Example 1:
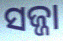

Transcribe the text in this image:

ସଜ୍ଜା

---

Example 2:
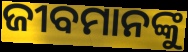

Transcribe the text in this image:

ଜୀବମାନଙ୍କୁ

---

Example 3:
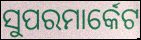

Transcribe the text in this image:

ସୁପରମାର୍କେଟ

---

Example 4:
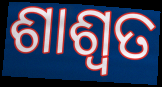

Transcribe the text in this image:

ଶାଶ୍ଵତ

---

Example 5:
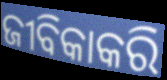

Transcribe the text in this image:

ଜୀବିକାକରି